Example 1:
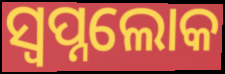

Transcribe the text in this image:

ସ୍ୱପ୍ନଲୋକ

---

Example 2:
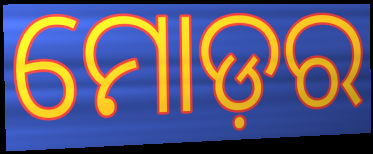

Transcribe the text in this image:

ମୋଡ଼ର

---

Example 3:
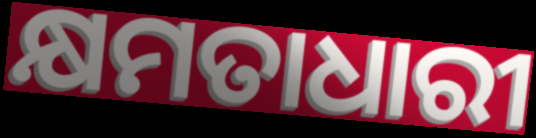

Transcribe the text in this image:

କ୍ଷମତାଧାରୀ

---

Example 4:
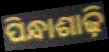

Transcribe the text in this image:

ପିନ୍ଧାଶାଢ଼ି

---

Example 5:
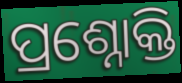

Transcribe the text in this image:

ପ୍ରଶ୍ନୋକ୍ତି